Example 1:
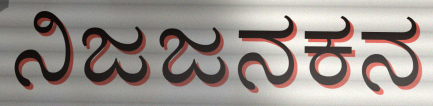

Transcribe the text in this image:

ನಿಜಜನಕನ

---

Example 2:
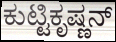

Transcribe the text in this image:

ಕುಟ್ಟಿಕೃಷ್ಣನ್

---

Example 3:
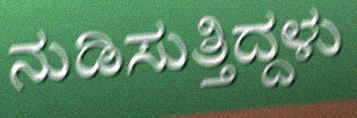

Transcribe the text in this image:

ನುಡಿಸುತ್ತಿದ್ದಳು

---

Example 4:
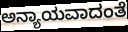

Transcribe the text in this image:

ಅನ್ಯಾಯವಾದಂತೆ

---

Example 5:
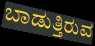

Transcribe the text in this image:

ಬಾಡುತ್ತಿರುವ